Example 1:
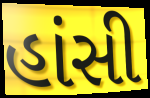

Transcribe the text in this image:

હાંસી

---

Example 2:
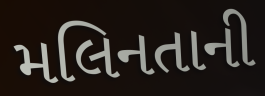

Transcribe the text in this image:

મલિનતાની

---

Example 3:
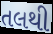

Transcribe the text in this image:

તલથી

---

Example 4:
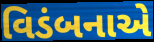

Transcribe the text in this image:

વિડંબનાએ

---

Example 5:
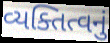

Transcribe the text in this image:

વ્યક્તિત્વનું